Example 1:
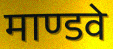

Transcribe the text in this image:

माण्डवे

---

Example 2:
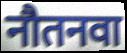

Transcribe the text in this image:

नौतनवा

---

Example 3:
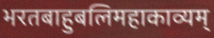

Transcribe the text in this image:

भरतबाहुबलिमहाकाव्यम्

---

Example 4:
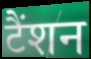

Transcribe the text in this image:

टैंशन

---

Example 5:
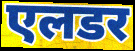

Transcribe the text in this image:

एलडर